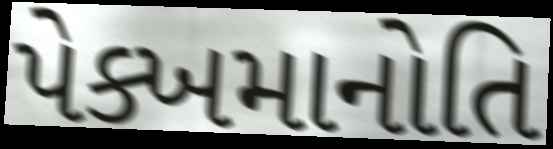
પેક્ખમાનોતિ